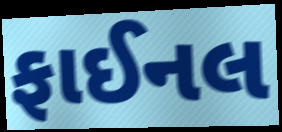
ફાઈનલ